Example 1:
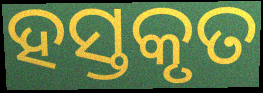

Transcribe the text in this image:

ହସ୍ତକୃତ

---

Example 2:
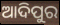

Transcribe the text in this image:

ଆଦିପୁର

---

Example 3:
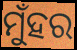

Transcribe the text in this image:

ମୁଁହର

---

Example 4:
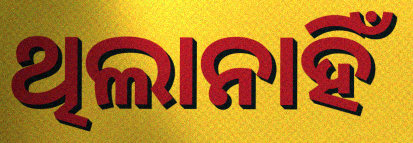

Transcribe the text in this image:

ଥିଲାନାହିଁ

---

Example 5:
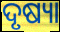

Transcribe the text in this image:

ଦୃଷ୍ୟା